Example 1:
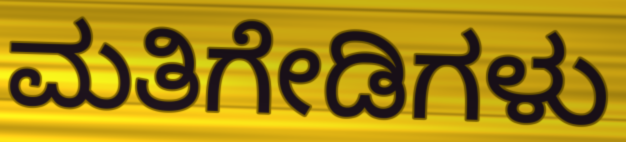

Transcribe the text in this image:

ಮತಿಗೇಡಿಗಳು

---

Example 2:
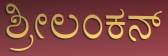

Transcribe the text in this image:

ಶ್ರೀಲಂಕನ್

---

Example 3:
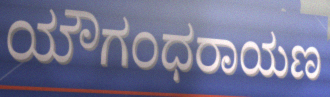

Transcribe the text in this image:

ಯೌಗಂಧರಾಯಣ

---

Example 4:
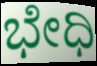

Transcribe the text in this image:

ಭೇಧಿ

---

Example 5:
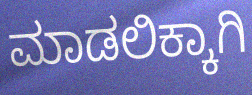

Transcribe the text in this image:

ಮಾಡಲಿಕ್ಕಾಗಿ